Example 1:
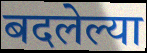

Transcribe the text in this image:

बदलेल्या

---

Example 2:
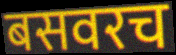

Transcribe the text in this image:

बसवरच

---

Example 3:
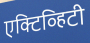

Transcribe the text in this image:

एक्टिव्हिटी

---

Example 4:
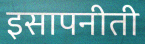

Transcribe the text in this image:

इसापनीती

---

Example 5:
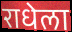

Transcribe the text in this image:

राधेला